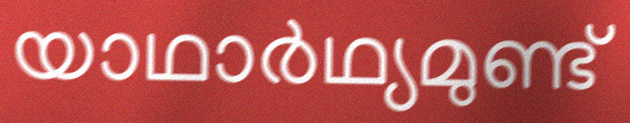
യാഥാർഥ്യമുണ്ട്